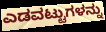
ಎಡವಟ್ಟುಗಳನ್ನು